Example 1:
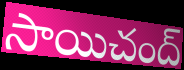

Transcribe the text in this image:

సాయిచంద్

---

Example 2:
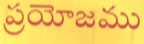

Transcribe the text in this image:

ప్రయోజము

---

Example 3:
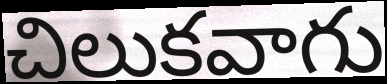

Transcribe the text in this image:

చిలుకవాగు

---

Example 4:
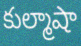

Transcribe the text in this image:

కుల్మాషా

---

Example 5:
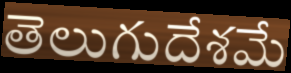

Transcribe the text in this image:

తెలుగుదేశమే